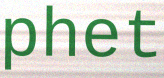
phet